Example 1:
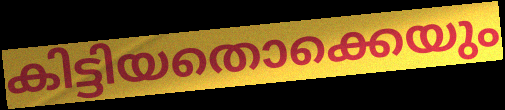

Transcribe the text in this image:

കിട്ടിയതൊക്കെയും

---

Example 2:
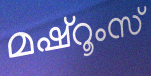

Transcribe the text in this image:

മഷ്റൂംസ്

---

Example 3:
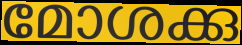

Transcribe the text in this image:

മോശക്കു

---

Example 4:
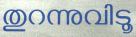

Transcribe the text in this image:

തുറന്നുവിടൂ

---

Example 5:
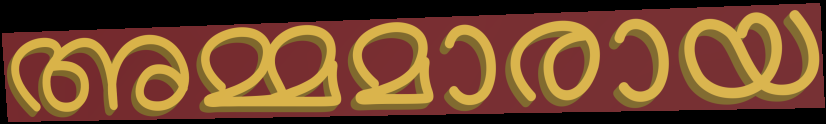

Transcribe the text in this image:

അമ്മമാരായ